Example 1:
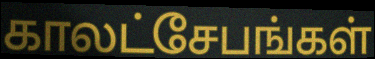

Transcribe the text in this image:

காலட்சேபங்கள்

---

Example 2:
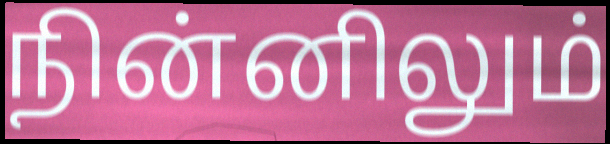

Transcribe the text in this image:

நின்னிலும்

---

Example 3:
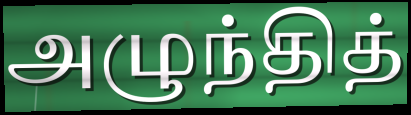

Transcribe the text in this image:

அழுந்தித்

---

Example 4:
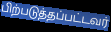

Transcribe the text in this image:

பிற்படுத்தப்பட்டவர்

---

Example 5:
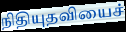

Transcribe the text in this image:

நிதியுதவியைச்